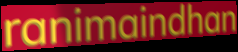
ranimaindhan